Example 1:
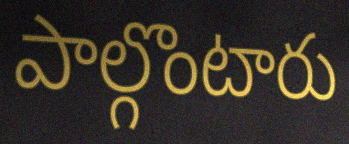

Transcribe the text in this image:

పాల్గొంటారు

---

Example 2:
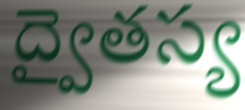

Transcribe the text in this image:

ద్వైతస్య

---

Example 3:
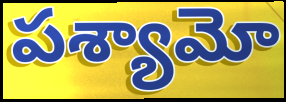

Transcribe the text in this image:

పశ్యామో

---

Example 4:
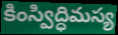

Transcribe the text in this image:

కింస్విద్ధిమస్య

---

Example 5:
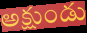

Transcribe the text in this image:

అక్షుండు